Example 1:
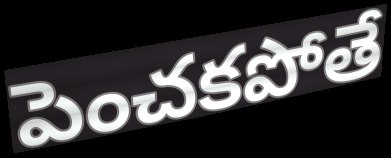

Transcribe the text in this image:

పెంచకపోతే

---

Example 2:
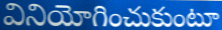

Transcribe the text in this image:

వినియోగించుకుంటూ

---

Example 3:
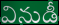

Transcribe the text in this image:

వినుడీ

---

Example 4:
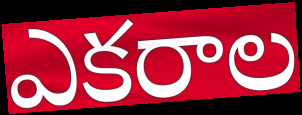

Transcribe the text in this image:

ఎకరాల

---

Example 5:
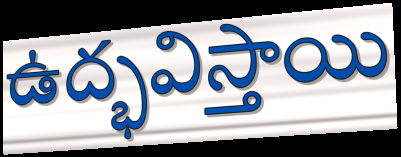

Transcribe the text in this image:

ఉద్భవిస్తాయి